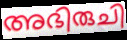
അഭിരുചി